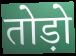
तोड़ो